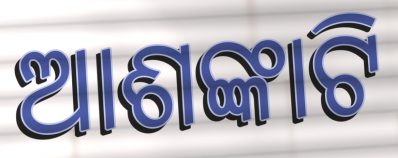
ଆଶଙ୍କାଟି